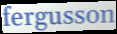
fergusson